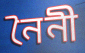
নৈনী